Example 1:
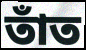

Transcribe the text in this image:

তাঁত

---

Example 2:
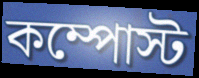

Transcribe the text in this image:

কম্পোস্ট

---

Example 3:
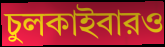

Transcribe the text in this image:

চুলকাইবারও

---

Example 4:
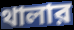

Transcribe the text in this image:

থালার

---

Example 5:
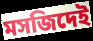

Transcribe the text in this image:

মসজিদেই